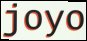
joyo